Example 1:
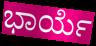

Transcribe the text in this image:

ಭಾರ್ಯೆ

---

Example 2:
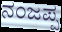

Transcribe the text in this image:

ನಂಜಪ್ಪ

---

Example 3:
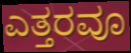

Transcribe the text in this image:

ಎತ್ತರವೂ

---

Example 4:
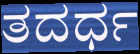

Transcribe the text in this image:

ತದರ್ಧ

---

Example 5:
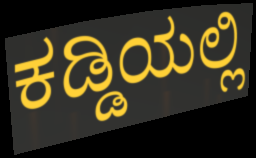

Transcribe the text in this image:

ಕಡ್ಡಿಯಲ್ಲಿ